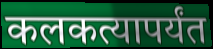
कलकत्यापर्यंत